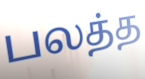
பலத்த